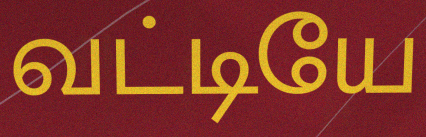
வட்டியே